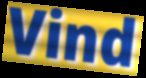
Vind